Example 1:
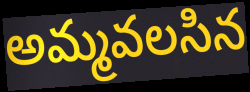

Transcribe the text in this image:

అమ్మవలసిన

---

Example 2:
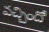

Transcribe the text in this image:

వచ్చిందో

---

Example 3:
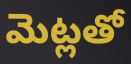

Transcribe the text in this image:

మెట్లతో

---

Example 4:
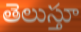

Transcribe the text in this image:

తెలుస్తూ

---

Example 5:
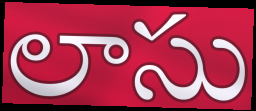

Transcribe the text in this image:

లాసు